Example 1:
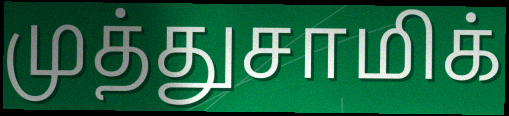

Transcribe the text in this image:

முத்துசாமிக்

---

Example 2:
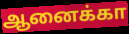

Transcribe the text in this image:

ஆனைக்கா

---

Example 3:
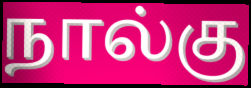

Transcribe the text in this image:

நால்கு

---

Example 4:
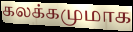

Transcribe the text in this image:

கலக்கமுமாக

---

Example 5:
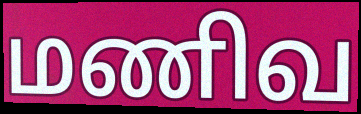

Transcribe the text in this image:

மணிவ